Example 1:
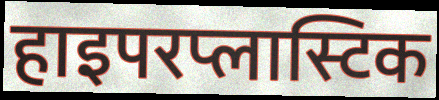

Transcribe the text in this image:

हाइपरप्लास्टिक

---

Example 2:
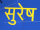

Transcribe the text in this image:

सुरेष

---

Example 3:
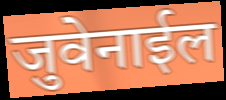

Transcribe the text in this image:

जुवेनाईल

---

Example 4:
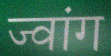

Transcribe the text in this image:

ज्वांग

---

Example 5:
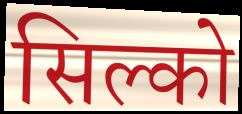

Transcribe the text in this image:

सिल्को